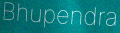
Bhupendra